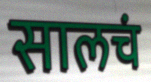
सालचं